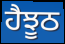
ਹੈਝੂਠ